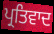
ਪ੍ਰਤਿਵਾਦ